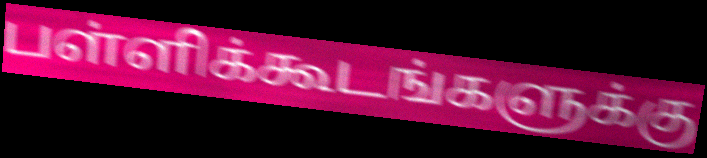
பள்ளிக்கூடங்களுக்கு